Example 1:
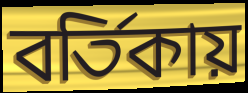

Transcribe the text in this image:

বর্তিকায়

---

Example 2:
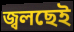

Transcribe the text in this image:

জ্বলছেই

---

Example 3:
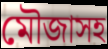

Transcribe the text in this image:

মৌজাসহ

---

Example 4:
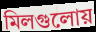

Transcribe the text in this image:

মিলগুলোয়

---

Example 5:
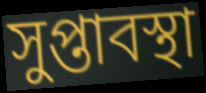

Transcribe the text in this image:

সুপ্তাবস্থা